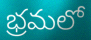
భ్రమలో